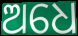
ଅଧେ